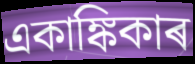
একাঙ্কিকাৰ